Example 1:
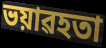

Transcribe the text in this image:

ভয়াৱহতা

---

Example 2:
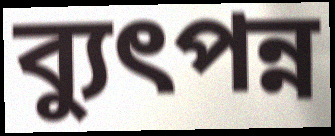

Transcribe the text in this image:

ব্যুৎপন্ন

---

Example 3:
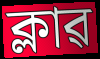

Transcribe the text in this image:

ক্লাৱ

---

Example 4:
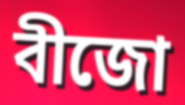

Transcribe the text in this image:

বীজো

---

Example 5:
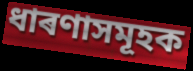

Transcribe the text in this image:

ধাৰণাসমূহক